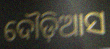
ଦୌଡ଼ିଆସ